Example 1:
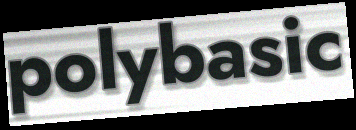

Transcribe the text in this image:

polybasic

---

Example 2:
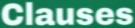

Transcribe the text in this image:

Clauses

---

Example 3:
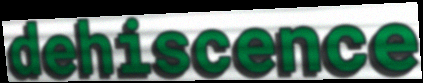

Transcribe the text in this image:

dehiscence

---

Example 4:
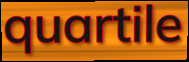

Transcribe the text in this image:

quartile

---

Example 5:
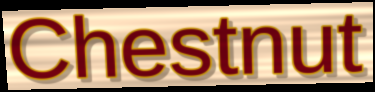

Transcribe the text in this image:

Chestnut